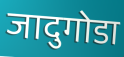
जादुगोडा